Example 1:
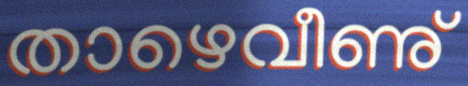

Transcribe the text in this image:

താഴെവീണു്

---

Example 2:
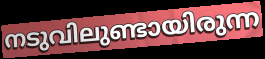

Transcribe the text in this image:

നടുവിലുണ്ടായിരുന്ന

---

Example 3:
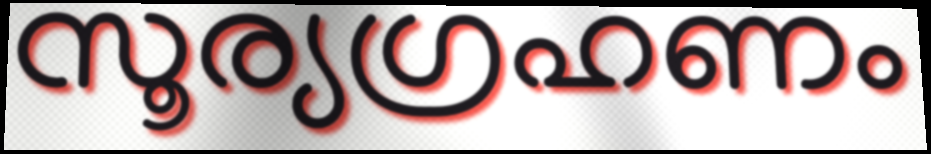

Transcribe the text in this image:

സൂര്യഗ്രഹണം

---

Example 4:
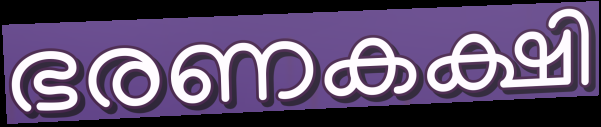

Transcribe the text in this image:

ഭരണകക്ഷി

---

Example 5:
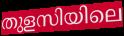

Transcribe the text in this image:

തുളസിയിലെ